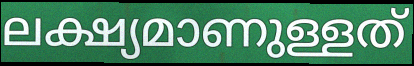
ലക്ഷ്യമാണുള്ളത്